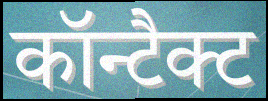
कॉन्टैक्ट